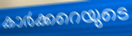
കാർക്കറെയുടെ